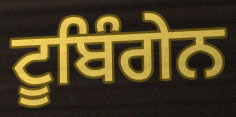
ਟੂਬਿੰਗੇਨ